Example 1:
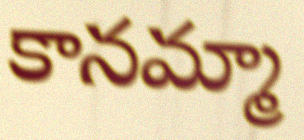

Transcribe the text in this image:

కానమ్మా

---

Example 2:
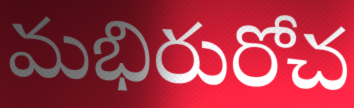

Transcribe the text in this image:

మభిరురోచ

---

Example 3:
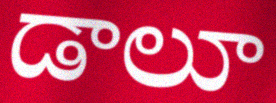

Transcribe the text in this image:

డాలూ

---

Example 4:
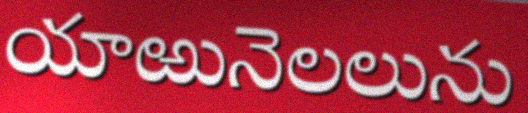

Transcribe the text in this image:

యాఱునెలలును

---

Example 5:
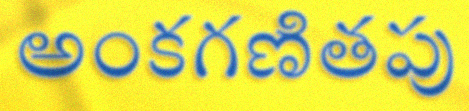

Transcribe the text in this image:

అంకగణితపు